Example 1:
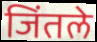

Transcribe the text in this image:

जिंतले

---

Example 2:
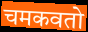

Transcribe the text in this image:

चमकवतो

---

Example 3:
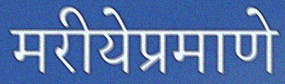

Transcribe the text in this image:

मरीयेप्रमाणे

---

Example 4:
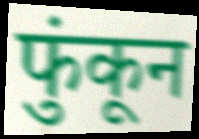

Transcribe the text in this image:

फुंकून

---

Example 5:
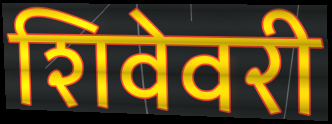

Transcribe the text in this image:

शिवेवरी